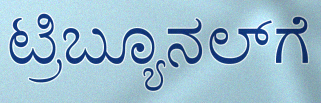
ಟ್ರಿಬ್ಯೂನಲ್‌ಗೆ